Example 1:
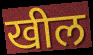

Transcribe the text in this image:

खील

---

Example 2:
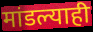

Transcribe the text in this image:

मांडल्याही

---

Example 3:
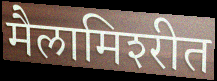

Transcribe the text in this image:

मैलामिश्रीत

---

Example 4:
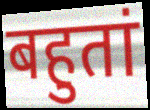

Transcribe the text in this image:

बहुतां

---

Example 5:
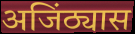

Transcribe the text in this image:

अजिंठ्यास